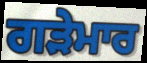
ਗੜੇਮਾਰ